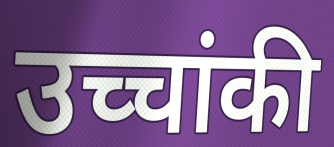
उच्चांकी